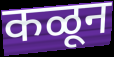
कळून